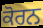
ਕੋਰਨ